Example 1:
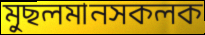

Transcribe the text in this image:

মুছলমানসকলক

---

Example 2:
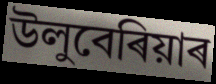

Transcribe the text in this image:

উলুবেৰিয়াৰ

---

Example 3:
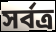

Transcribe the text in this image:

সৰ্বত্ৰ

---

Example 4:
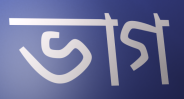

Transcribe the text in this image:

ভাগ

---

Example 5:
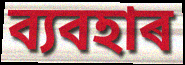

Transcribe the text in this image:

ব্যবহাৰ